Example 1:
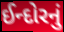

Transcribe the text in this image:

ઈન્દોરનું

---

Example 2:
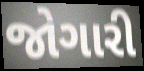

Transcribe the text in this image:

જોગારી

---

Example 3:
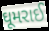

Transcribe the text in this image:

ઘૂમરાઈ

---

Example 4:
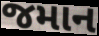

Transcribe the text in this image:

જમાન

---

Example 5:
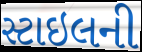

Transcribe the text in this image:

સ્ટાઇલની